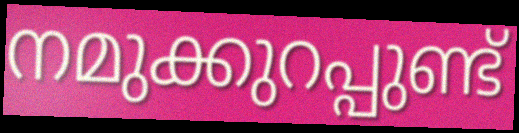
നമുക്കുറപ്പുണ്ട്